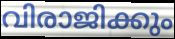
വിരാജിക്കും